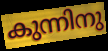
കുന്നിനു